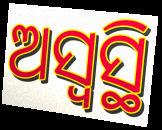
ଅସ୍ୱସ୍ଥି